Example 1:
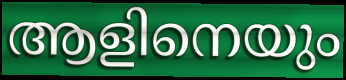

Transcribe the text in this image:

ആളിനെയും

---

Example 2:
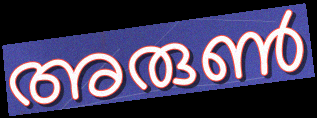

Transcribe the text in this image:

അരുൺ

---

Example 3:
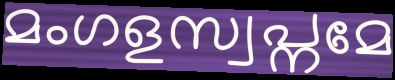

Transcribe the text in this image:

മംഗളസ്വപ്നമേ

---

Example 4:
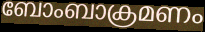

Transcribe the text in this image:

ബോംബാക്രമണം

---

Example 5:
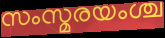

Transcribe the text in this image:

സംസ്മരയംശ്ച